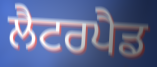
ਲੈਟਰਪੈਡ